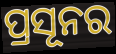
ପ୍ରସୂନର